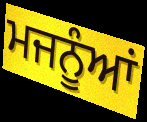
ਮਜਨੂੰਆਂ